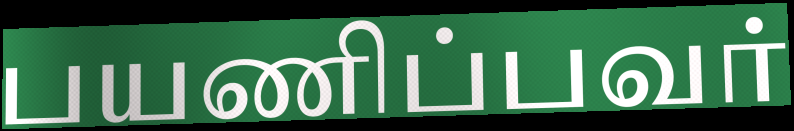
பயணிப்பவர்